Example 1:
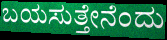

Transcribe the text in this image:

ಬಯಸುತ್ತೇನೆಂದು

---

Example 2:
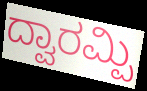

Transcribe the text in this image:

ದ್ವಾರಮ್ಪಿ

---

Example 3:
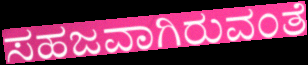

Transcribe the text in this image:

ಸಹಜವಾಗಿರುವಂತೆ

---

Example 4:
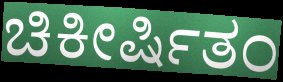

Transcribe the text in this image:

ಚಿಕೀರ್ಷಿತಂ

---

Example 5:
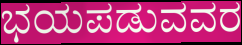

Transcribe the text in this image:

ಭಯಪಡುವವರ